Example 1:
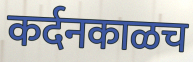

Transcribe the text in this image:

कर्दनकाळच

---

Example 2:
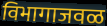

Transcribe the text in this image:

विभागाजवळ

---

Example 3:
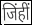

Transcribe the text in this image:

जिंहीं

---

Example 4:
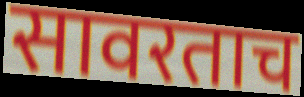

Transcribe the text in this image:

सावरताच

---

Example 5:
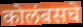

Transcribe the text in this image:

कोलंबसचे